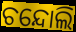
ଚନ୍ଦୋଲି